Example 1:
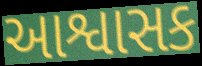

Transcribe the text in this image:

આશ્વાસક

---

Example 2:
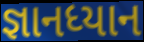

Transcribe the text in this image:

જ્ઞાનધ્યાન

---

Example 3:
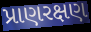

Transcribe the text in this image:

પ્રાણરક્ષણ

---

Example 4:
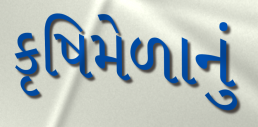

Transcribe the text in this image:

કૃષિમેળાનું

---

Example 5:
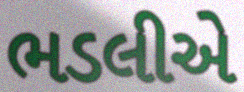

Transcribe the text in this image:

ભડલીએ